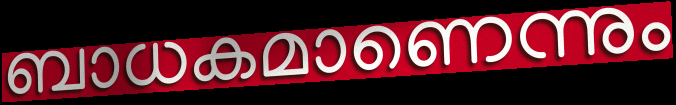
ബാധകമാണെന്നും